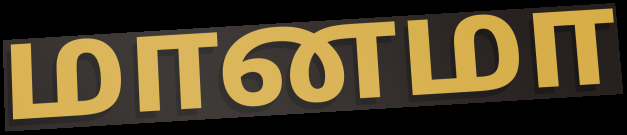
மானமா